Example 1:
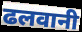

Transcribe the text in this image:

ढलवानी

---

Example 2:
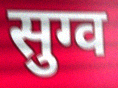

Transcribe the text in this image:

सुग्व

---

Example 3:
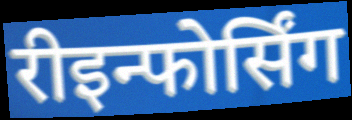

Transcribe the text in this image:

रीइन्फोर्सिंग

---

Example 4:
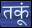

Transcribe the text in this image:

तकूं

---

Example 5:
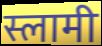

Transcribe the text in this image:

स्लामी